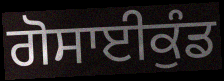
ਗੋਸਾਈਕੁੰਡ